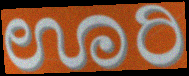
ಊರಿ